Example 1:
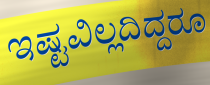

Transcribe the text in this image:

ಇಷ್ಟವಿಲ್ಲದಿದ್ದರೂ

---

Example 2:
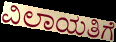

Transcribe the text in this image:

ವಿಲಾಯತಿಗೆ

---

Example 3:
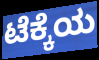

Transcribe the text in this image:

ಟೆಕ್ಕೆಯ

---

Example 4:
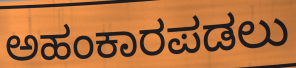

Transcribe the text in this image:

ಅಹಂಕಾರಪಡಲು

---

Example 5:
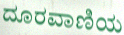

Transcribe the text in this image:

ದೂರವಾಣಿಯ